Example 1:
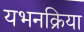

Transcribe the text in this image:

यभनक्रिया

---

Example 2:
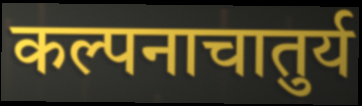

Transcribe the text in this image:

कल्पनाचातुर्य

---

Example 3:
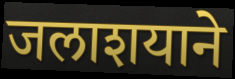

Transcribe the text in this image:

जलाशयाने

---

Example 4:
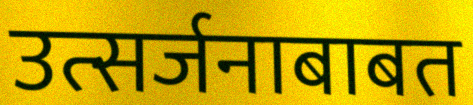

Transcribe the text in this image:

उत्सर्जनाबाबत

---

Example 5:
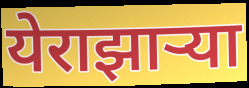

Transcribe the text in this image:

येराझाऱ्या